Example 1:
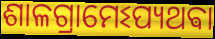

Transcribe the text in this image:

ଶାଳଗ୍ରାମେଽପ୍ଯଥଵା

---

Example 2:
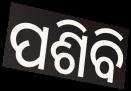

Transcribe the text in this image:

ପଶିବି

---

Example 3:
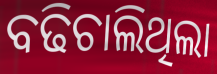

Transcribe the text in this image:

ବଢିଚାଲିଥିଲା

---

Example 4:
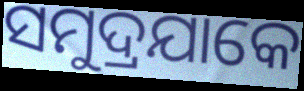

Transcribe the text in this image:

ସମୁଦ୍ରଯାକେ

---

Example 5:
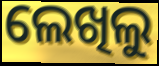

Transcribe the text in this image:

ଲେଖିଲୁ